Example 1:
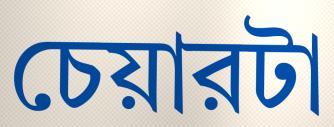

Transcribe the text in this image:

চেয়ারটা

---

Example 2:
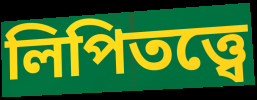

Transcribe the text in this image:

লিপিতত্ত্বে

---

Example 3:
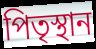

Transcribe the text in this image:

পিতৃস্থান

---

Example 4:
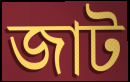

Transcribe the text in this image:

জাট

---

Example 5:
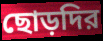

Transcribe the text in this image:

ছোড়দির